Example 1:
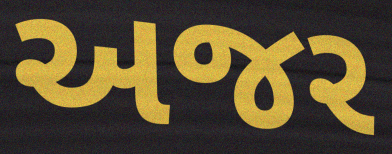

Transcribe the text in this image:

અજર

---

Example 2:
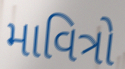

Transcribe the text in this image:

માવિત્રો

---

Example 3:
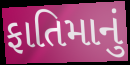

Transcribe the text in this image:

ફાતિમાનું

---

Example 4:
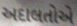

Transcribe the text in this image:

અદાલતોએ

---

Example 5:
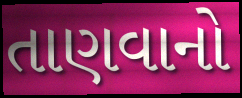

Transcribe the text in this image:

તાણવાનો